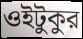
ওইটুকুর